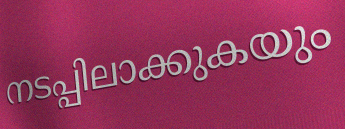
നടപ്പിലാക്കുകയും